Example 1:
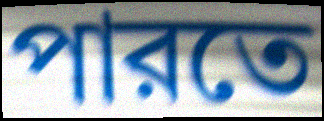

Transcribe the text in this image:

পারতে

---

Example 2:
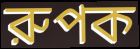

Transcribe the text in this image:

রুপক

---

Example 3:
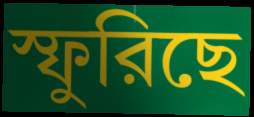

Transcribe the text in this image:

স্ফুরিছে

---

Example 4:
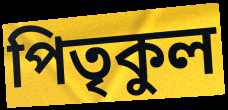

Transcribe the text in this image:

পিতৃকুল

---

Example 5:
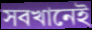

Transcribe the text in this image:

সবখানেই